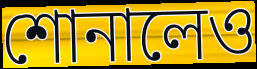
শোনালেও